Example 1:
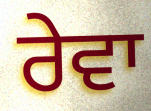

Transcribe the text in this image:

ਰੇਵਾ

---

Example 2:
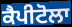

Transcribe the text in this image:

ਕੈਪੀਟੋਲਾ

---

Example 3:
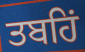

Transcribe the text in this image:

ਤਬਹਿਂ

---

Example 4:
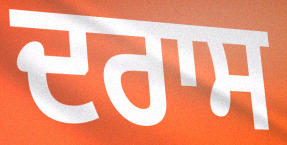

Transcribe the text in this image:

ਦਰਾਸ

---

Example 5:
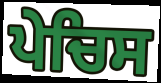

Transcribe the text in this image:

ਪੇਚਿਸ